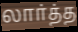
லார்த்த